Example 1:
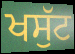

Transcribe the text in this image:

ਖਸੁੱਟ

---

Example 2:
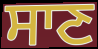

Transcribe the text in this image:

ਸਾਣ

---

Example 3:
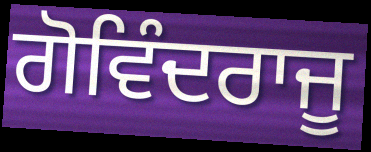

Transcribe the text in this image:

ਗੋਵਿੰਦਰਾਜੂ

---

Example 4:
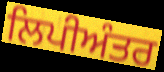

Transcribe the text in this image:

ਲਿਪੀਅੰਤਰ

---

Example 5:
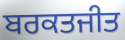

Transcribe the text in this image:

ਬਰਕਤਜੀਤ